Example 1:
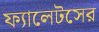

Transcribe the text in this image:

ফ্যালেটসের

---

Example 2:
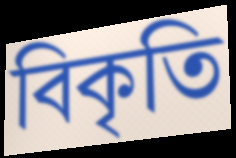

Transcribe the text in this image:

বিকৃতি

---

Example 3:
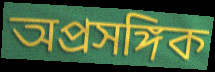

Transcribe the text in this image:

অপ্রসঙ্গিক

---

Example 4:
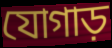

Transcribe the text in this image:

যোগাড়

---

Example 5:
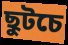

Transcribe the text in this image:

ছুটচে